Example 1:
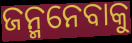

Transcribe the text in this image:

ଜନ୍ମନେବାକୁ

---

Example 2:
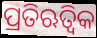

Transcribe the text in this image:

ପ୍ରତିଋତ୍ୱିକ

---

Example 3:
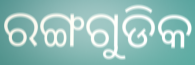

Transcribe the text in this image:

ରଙ୍ଗଗୁଡିକ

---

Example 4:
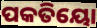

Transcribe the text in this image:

ପକତିୟୋ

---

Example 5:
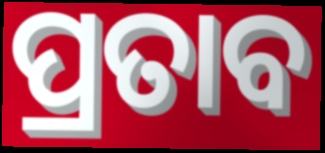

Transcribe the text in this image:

ପ୍ରତାବ